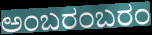
ಅಂಬರಂಬರಂ